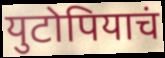
युटोपियाचं